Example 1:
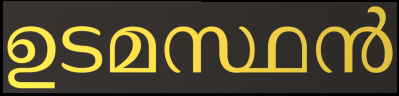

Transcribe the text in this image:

ഉടമസ്ഥൻ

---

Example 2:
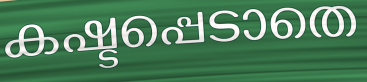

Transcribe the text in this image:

കഷ്ടപ്പെടാതെ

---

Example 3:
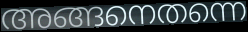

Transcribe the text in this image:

അങ്ങനെതന്നെ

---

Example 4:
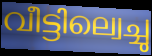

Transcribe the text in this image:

വീട്ടില്വെച്ചു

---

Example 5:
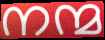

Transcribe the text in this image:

നന്മ